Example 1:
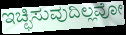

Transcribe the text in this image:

ಇಚ್ಛಿಸುವುದಿಲ್ಲವೋ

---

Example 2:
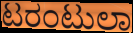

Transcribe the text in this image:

ಟರಂಟುಲಾ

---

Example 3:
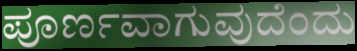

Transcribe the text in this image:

ಪೂರ್ಣವಾಗುವುದೆಂದು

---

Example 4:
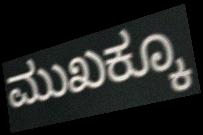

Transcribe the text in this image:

ಮುಖಕ್ಕೂ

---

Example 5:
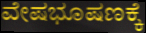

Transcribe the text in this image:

ವೇಷಭೂಷಣಕ್ಕೆ